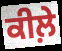
ਕੀਲ਼ੇ